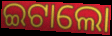
ଇଟାଲୋ